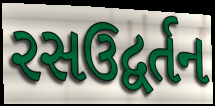
રસઉદ્વર્તન